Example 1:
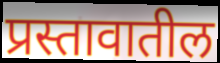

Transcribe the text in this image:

प्रस्तावातील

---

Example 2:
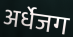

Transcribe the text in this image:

अर्धेजग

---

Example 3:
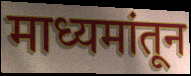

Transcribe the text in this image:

माध्यमांतून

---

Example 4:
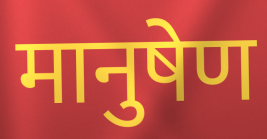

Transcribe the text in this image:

मानुषेण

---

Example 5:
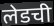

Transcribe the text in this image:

लेडची